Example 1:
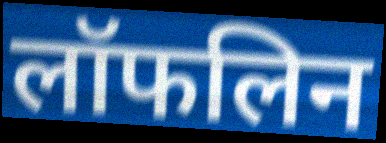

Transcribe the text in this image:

लॉफलिन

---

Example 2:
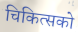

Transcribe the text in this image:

चिकित्सको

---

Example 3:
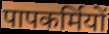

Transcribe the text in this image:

पापकर्मियों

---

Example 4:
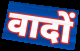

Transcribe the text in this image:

वादों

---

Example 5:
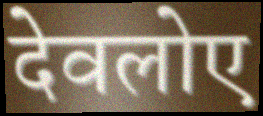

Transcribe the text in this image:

देवलोए